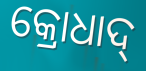
କ୍ରୋଧାଦ୍